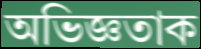
অভিজ্ঞতাক